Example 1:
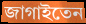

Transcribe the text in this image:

জাগাইতেন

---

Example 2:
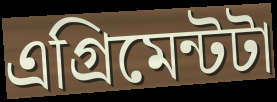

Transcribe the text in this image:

এগ্রিমেন্টটা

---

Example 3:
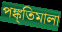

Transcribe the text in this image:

পঙ্ক্তিমালা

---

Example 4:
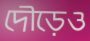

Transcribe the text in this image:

দৌড়েও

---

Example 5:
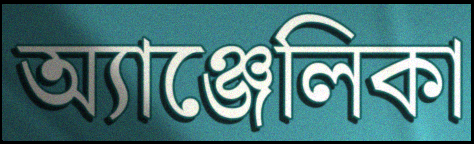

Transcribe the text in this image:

অ্যাঞ্জেলিকা